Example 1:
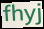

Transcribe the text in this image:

fhyj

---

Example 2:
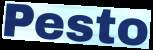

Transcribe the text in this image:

Pesto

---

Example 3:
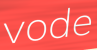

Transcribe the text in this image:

vode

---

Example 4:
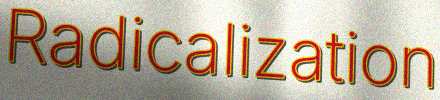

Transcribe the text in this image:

Radicalization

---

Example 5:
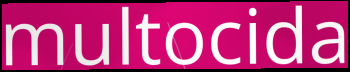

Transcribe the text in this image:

multocida